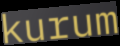
kurum